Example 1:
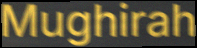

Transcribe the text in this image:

Mughirah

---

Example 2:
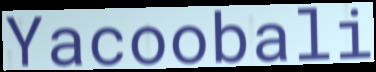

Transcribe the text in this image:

Yacoobali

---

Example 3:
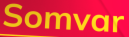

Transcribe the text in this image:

Somvar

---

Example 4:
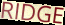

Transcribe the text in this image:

RIDGE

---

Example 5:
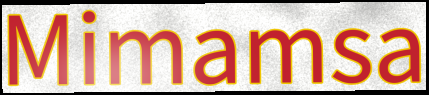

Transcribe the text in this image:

Mimamsa